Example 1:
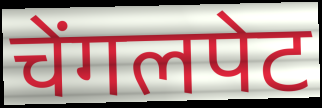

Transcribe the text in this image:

चेंगलपेट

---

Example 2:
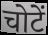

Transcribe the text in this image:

चोटें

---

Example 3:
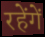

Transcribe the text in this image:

रहेंगें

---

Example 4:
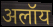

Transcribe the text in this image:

अलॉय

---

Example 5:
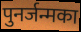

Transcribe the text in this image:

पुनर्जन्मका